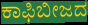
ಕಾಫಿಬೀಜದ